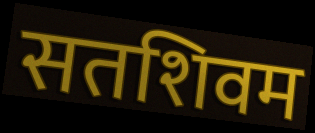
सतशिवम